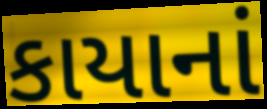
કાયાનાં